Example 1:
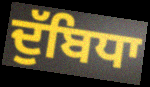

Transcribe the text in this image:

ਦੁੱਬਿਧਾ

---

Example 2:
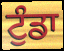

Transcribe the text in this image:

ਟੁੰਡਾ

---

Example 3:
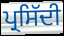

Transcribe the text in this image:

ਪ੍ਰਸਿੱਦੀ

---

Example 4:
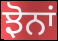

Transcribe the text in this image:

ਝੋਨਾਂ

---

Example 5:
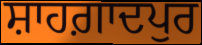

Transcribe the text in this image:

ਸ਼ਾਹਗ਼ਾਦਪੁਰ